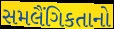
સમલૈંગિકતાનો